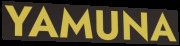
YAMUNA